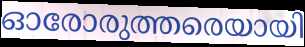
ഓരോരുത്തരെയായി